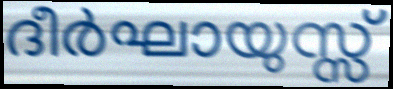
ദീർഘായുസ്സ്